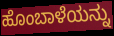
ಹೊಂಬಾಳೆಯನ್ನು